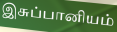
இசுப்பானியம்